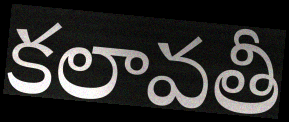
కలావతీ